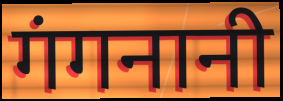
गंगनानी